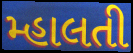
મ્હાલતી